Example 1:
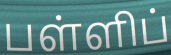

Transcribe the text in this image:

பள்ளிப்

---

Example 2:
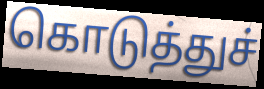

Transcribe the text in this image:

கொடுத்துச்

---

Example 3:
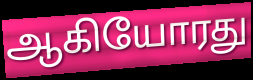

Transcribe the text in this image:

ஆகியோரது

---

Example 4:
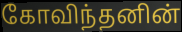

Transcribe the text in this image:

கோவிந்தனின்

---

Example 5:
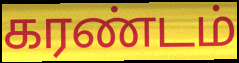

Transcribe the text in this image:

கரண்டம்